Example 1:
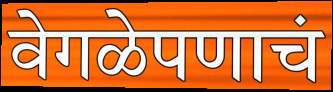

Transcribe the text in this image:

वेगळेपणाचं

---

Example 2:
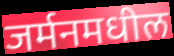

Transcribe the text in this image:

जर्मनमधील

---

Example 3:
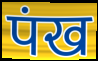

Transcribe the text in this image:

पंख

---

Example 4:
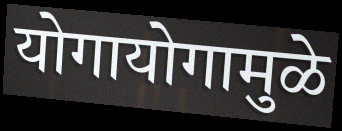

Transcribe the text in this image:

योगायोगामुळे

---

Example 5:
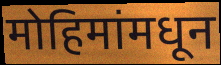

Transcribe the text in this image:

मोहिमांमधून